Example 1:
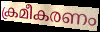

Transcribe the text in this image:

ക്രമീകരണം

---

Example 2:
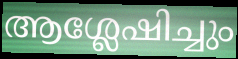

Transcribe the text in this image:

ആശ്ലേഷിച്ചും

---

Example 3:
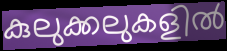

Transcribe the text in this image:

കുലുക്കലുകളിൽ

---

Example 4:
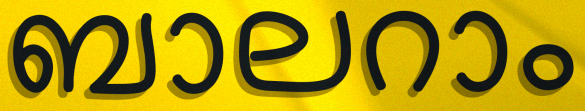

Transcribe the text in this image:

ബാലറാം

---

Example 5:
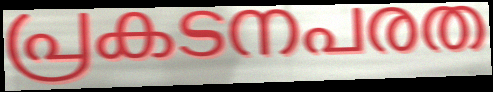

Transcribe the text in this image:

പ്രകടനപരത